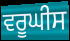
ਵਰੂਘੀਸ